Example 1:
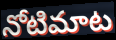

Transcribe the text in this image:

నోటిమాట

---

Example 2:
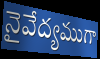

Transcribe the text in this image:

నైవేద్యముగా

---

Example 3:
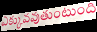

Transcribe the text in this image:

ఎక్కువవుతుంటుంది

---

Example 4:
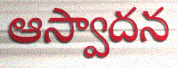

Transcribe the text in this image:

ఆస్వాదన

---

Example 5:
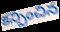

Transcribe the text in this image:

కన్పించిన